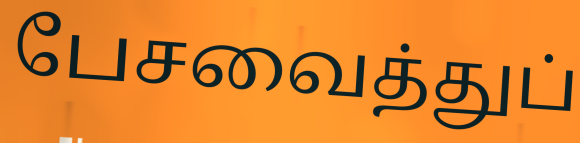
பேசவைத்துப்